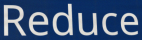
Reduce